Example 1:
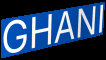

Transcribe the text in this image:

GHANI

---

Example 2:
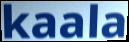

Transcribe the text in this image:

kaala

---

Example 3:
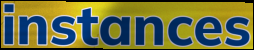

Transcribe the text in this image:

instances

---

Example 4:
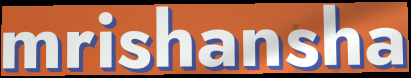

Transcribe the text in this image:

mrishansha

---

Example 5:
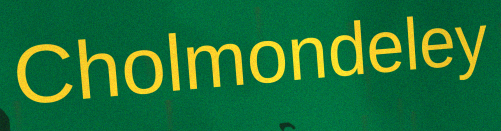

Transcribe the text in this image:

Cholmondeley